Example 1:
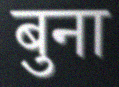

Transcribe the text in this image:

बुना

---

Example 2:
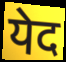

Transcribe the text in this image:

येद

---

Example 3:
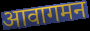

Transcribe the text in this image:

आवागमन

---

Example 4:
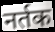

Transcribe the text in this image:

नर्तक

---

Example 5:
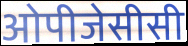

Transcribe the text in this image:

ओपीजेसीसी